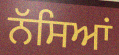
ਨੱਸਿਆਂ